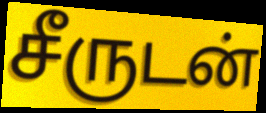
சீருடன்